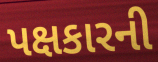
પક્ષકારની